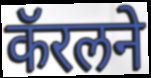
कॅरलने